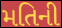
મતિની